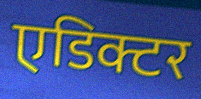
एडिक्टर